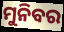
ମୁନିବର